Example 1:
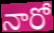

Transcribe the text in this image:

నారో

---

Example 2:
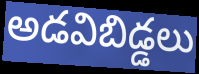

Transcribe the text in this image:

అడవిబిడ్డలు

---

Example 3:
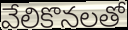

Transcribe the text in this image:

వేలికొనలతో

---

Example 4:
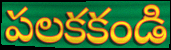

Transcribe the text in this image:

పలకకండి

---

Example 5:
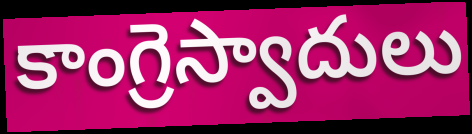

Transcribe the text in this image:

కాంగ్రెస్వాదులు